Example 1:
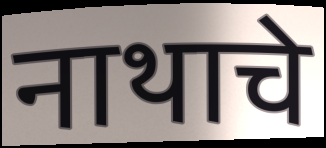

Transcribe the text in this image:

नाथाचे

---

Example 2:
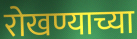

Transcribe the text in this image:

रोखण्याच्या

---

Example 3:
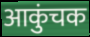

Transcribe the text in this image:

आकुंचक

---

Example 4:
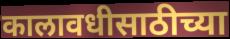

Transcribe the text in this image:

कालावधीसाठीच्या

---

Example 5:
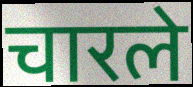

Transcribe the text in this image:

चारले